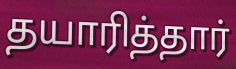
தயாரித்தார்